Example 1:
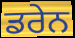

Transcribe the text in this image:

ਡਰੇਨ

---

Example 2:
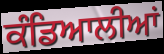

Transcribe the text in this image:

ਕੰਡਿਆਲੀਆਂ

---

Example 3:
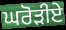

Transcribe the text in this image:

ਘਰੋੜੀਏ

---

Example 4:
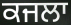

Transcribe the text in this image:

ਕਜਲਾ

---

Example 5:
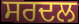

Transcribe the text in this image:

ਸਰਦਲ